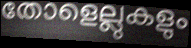
തോളെല്ലുകളും